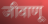
जीवाणू